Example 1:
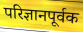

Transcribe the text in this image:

परिज्ञानपूर्वक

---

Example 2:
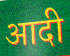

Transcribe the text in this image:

आदी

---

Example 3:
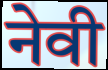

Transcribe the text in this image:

नेवी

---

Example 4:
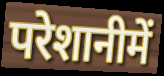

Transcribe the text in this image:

परेशानीमें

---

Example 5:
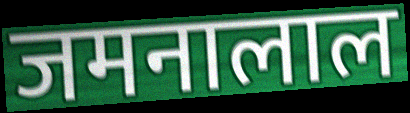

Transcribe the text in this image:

जमनालाल